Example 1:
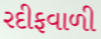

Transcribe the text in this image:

રદીફવાળી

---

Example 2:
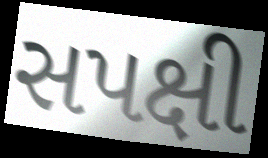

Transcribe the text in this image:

સપક્ષી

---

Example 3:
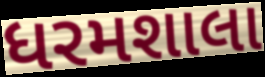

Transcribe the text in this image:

ધરમશાલા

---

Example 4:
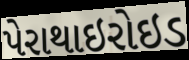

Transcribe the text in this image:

પેરાથાઇરોઇડ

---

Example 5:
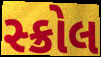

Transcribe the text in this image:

સ્ક્રોલ